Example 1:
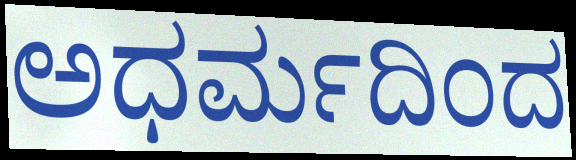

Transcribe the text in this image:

ಅಧರ್ಮದಿಂದ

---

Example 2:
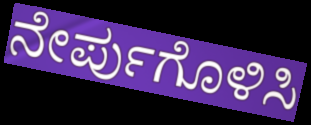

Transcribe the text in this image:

ನೇರ್ಪುಗೊಳಿಸಿ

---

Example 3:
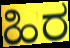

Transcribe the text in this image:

ಹಿರ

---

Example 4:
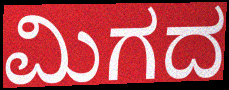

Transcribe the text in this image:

ಮಿಗದ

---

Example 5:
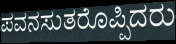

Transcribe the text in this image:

ಪವನಸುತರೊಪ್ಪಿದರು